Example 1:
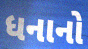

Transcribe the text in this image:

ધનાનો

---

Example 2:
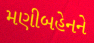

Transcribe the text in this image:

મણીબહેનને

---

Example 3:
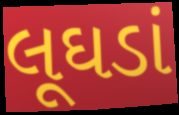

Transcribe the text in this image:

લૂઘડાં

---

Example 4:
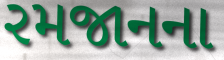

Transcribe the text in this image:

રમજાનના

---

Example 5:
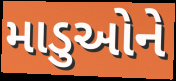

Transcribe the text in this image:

માડુઓને